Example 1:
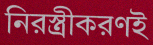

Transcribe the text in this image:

নিরস্ত্রীকরণই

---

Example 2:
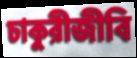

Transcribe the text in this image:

চাকুরীজীবি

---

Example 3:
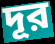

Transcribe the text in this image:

দূর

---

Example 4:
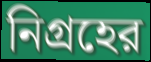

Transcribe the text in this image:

নিগ্রহের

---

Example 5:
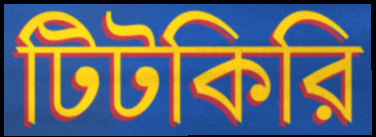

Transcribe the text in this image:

টিটকিরি